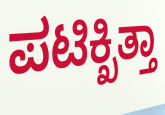
ಪಟಿಕ್ಖಿತ್ತಾ